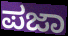
ಪಜಾ